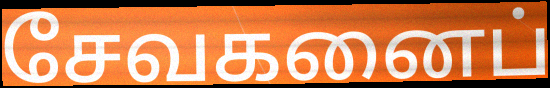
சேவகனைப்